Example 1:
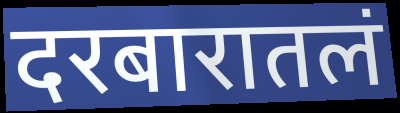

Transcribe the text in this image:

दरबारातलं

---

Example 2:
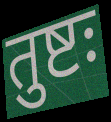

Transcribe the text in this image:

तुष्टः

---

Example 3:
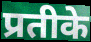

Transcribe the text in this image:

प्रतीके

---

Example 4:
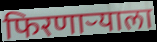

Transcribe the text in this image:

फिरणाऱ्याला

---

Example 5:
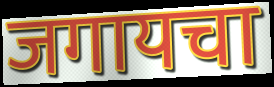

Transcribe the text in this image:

जगायचा